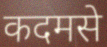
कदमसे